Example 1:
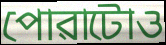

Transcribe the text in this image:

পোৱাটোও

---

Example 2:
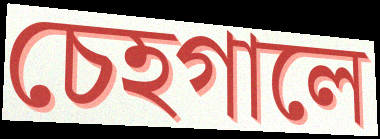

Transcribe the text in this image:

চেহগালে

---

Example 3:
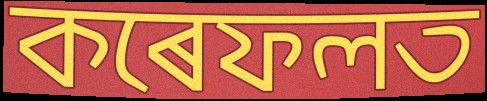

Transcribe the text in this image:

কৰেফলত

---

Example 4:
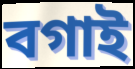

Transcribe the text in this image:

বগাই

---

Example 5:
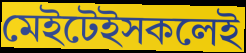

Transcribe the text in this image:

মেইটেইসকলেই